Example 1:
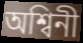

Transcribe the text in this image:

অশ্বিনী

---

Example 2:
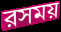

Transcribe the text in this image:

রসময়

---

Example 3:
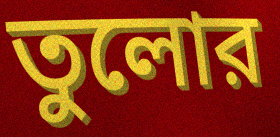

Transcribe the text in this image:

তুলোর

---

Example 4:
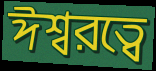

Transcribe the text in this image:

ঈশ্বরত্বে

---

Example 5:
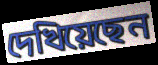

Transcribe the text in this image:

দেখিয়েছেন